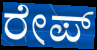
ರೇಪ್